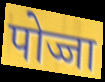
पोज्जा